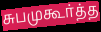
சுபமுகூர்த்த